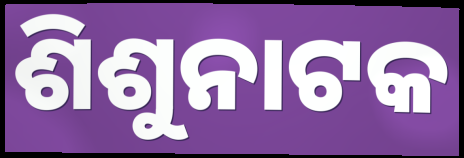
ଶିଶୁନାଟକ